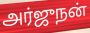
அர்ஜுநன்